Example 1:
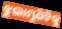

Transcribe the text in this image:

ଝୁଲାମୁଣିଟିକୁ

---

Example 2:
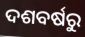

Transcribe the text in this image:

ଦଶବର୍ଷରୁ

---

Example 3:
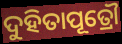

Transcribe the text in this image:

ଦୁହିତାପୂତ୍ରୌ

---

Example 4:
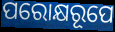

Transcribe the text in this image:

ପରୋକ୍ଷରୂପେ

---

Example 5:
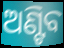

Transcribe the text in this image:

ଅଣ୍ଟିବ